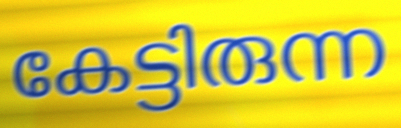
കേട്ടിരുന്ന